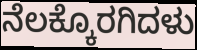
ನೆಲಕ್ಕೊರಗಿದಳು